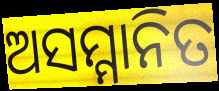
ଅସମ୍ମାନିତ